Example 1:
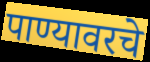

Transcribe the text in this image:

पाण्यावरचे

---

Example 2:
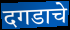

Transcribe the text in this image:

दगडाचे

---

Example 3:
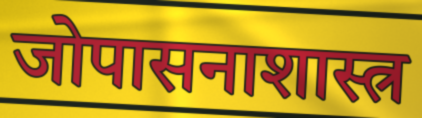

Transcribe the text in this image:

जोपासनाशास्त्र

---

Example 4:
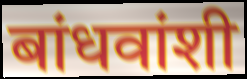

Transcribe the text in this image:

बांधवांशी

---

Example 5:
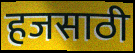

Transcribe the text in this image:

हजसाठी